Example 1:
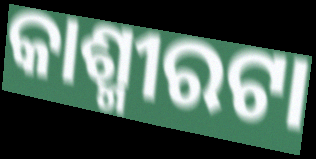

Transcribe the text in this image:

କାଶ୍ମୀରଟା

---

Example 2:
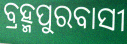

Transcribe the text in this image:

ବ୍ରହ୍ମପୁରବାସୀ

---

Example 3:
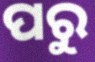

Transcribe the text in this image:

ପରୁ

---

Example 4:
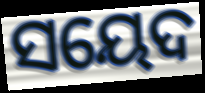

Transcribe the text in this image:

ସୟେଦ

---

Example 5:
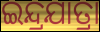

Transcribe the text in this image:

ଇନ୍ଦ୍ରଯାତ୍ରା